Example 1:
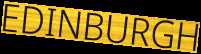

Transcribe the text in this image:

EDINBURGH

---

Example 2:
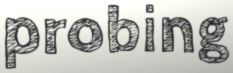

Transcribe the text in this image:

probing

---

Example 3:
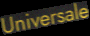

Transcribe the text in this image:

Universale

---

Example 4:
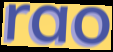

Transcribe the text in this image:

rao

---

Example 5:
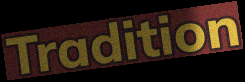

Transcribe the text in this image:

Tradition